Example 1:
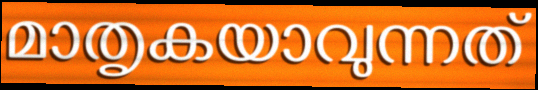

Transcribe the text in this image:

മാതൃകയാവുന്നത്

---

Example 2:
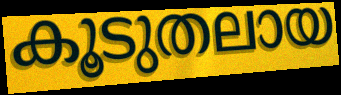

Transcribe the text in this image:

കൂടുതലായ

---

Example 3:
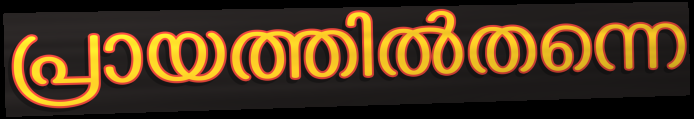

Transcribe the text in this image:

പ്രായത്തിൽതന്നെ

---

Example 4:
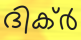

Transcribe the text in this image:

ദിക്ർ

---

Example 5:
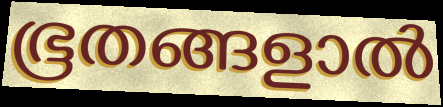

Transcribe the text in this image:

ഭൂതങ്ങളാൽ